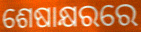
ଶେଷାକ୍ଷରରେ